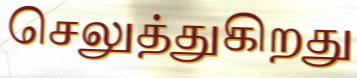
செலுத்துகிறது